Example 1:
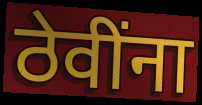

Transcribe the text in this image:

ठेवींना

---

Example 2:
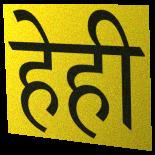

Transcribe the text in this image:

हेही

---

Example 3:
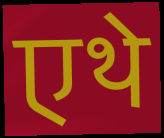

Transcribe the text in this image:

एथे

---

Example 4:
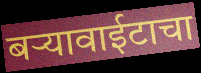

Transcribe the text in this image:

बऱ्यावाईटाचा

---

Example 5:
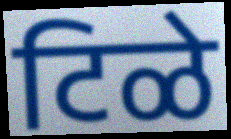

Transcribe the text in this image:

टिळे